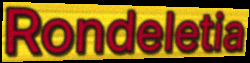
Rondeletia